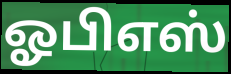
ஓபிஎஸ்